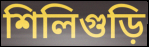
শিলিগুড়ি